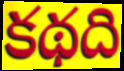
కథది